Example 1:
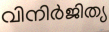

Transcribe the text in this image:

വിനിർജിത്യ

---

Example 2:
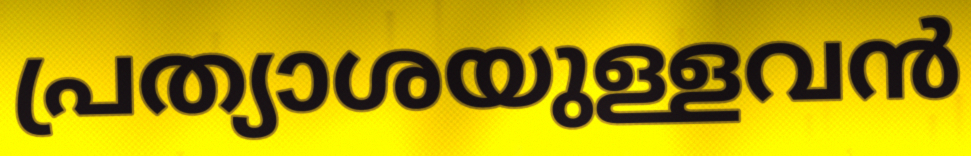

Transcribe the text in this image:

പ്രത്യാശയുള്ളവൻ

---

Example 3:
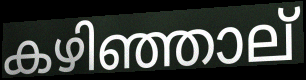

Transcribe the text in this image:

കഴിഞ്ഞാല്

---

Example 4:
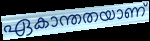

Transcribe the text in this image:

ഏകാന്തതയാണ്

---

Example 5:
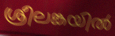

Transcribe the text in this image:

ശ്രീലങ്കയിൽ